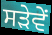
ਸੜੇਵੇਂ